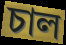
চাল